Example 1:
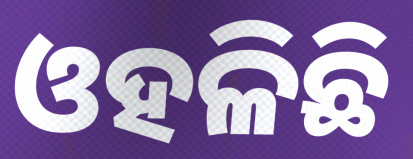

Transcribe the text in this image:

ଓହଳିଛି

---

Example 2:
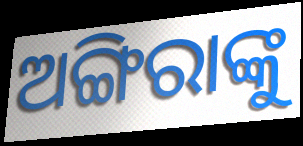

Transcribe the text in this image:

ଅଙ୍ଗିରାଙ୍କୁ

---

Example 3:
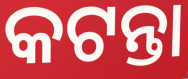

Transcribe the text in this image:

କଟନ୍ତା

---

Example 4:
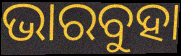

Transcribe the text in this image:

ଭାରବୁହା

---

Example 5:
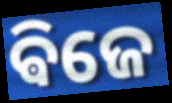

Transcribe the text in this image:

ଵିଜେ